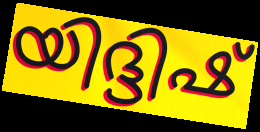
യിദ്ദിഷ്